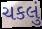
ચકલું